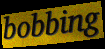
bobbing